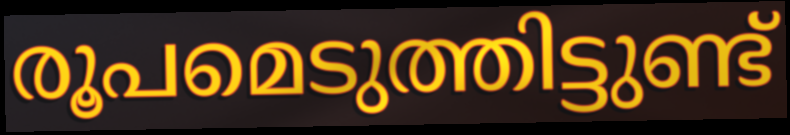
രൂപമെടുത്തിട്ടുണ്ട്